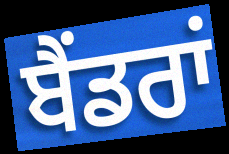
ਬੈਂਡਰਾਂ